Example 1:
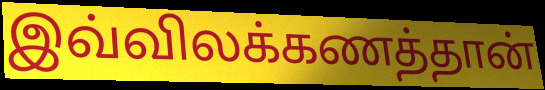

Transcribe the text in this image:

இவ்விலக்கணத்தான்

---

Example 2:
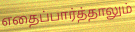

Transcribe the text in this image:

எதைப்பார்த்தாலும்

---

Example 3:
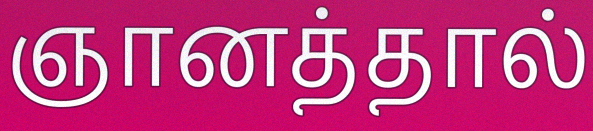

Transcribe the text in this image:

ஞானத்தால்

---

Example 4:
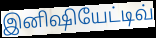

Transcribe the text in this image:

இனிஷியேட்டிவ்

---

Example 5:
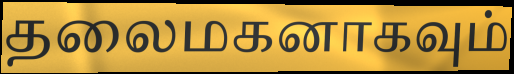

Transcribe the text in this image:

தலைமகனாகவும்